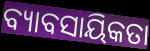
ବ୍ୟାବସାୟିକତା